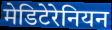
मेडिटेरेनियन